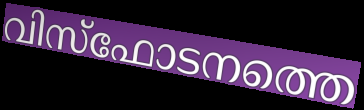
വിസ്ഫോടനത്തെ